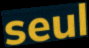
seul